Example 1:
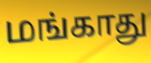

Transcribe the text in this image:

மங்காது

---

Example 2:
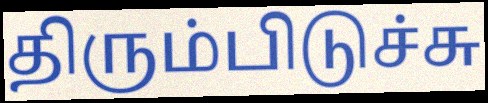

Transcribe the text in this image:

திரும்பிடுச்சு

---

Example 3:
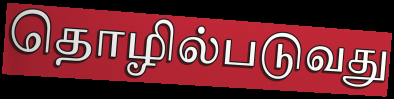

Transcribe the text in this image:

தொழில்படுவது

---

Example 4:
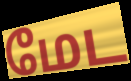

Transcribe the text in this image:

மேட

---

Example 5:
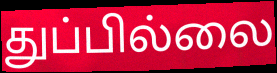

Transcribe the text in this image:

துப்பில்லை